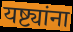
यष्ट्यांना